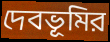
দেবভূমির